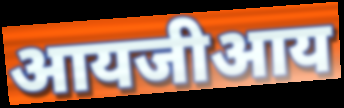
आयजीआय